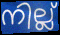
നില്ല്